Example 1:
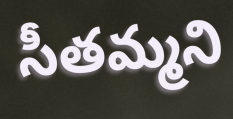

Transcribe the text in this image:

సీతమ్మని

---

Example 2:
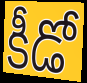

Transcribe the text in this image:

కీడో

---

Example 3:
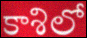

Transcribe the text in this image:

కాశిలో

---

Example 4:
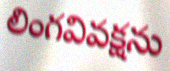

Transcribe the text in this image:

లింగవివక్షను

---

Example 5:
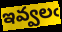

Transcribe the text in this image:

ఇవ్వలఁ